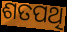
ଶତପଥି